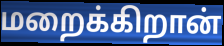
மறைக்கிறான்